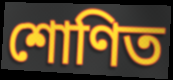
শোণিত